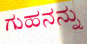
ಗುಹನನ್ನು